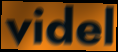
videl